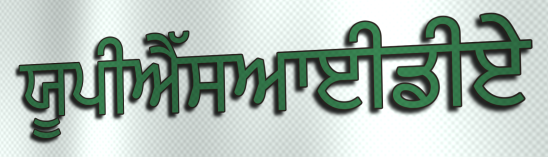
ਯੂਪੀਐੱਸਆਈਡੀਏ